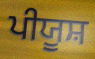
ਪੀਯੂਸ਼